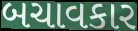
બચાવકાર